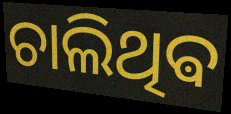
ଚାଲିଥିଵ